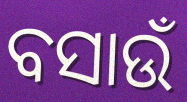
ବସାଉଁ